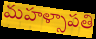
మహళ్సాపతి